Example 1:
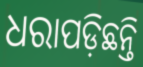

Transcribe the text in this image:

ଧରାପଡ଼ିଛନ୍ତି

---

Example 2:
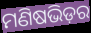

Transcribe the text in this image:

ମଣିଷଭିଡ଼ର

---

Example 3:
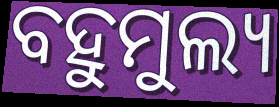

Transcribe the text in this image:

ବହୁମୁଲ୍ୟ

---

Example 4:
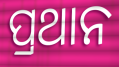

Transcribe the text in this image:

ପ୍ରଥାନ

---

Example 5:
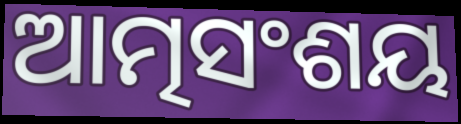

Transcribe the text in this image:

ଆତ୍ମସଂଶୟ